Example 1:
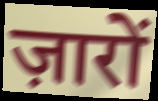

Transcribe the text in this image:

ज़ारों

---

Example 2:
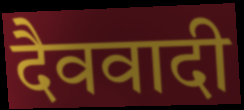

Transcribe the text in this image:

दैववादी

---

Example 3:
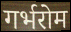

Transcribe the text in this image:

गर्भरोम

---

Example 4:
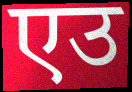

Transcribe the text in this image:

एउ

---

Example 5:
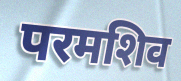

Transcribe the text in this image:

परमशिव